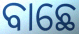
ବାଛେ